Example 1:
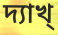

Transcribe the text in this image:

দ্যাখ্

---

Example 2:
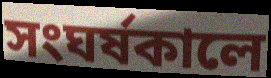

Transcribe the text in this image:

সংঘর্ষকালে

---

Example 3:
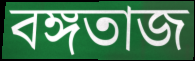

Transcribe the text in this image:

বঙ্গতাজ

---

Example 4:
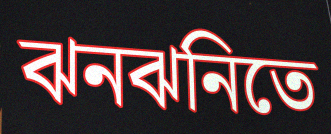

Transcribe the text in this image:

ঝনঝনিতে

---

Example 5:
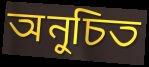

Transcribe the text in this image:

অনুচিত